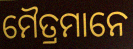
ମୈତ୍ରମାନେ